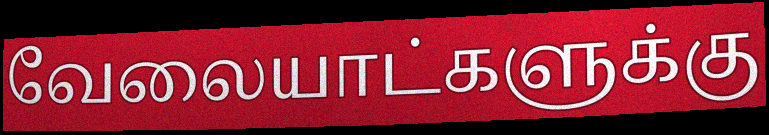
வேலையாட்களுக்கு